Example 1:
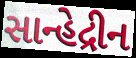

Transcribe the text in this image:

સાન્હેદ્રીન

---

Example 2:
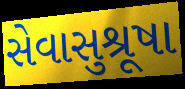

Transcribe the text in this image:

સેવાસુશ્રૂષા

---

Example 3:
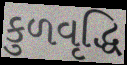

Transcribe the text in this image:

કુળવૃદ્ધિ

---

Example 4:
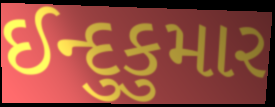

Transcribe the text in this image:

ઈન્દુકુમાર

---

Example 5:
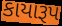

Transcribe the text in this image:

કાયારૂપ